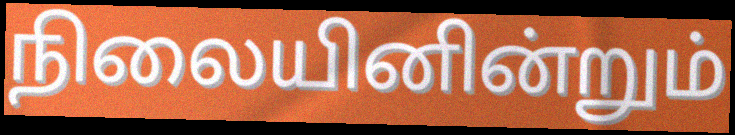
நிலையினின்றும்